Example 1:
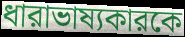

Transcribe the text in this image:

ধারাভাষ্যকারকে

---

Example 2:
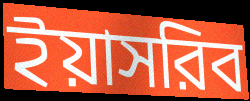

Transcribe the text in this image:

ইয়াসরিব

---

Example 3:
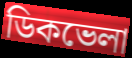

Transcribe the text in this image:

ডিকভেলা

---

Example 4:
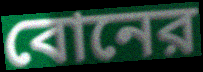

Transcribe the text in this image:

বোনের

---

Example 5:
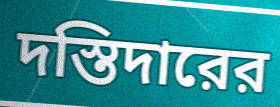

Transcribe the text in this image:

দস্তিদারের